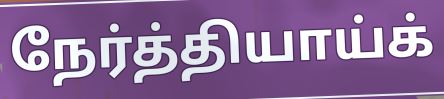
நேர்த்தியாய்க்